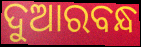
ଦୁଆରବନ୍ଧ